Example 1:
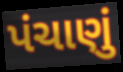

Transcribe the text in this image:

પંચાણું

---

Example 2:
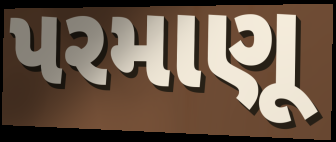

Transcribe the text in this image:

પરમાણૂ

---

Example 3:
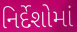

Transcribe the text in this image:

નિર્દેશોમાં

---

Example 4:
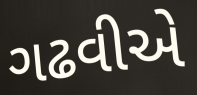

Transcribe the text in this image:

ગઢવીએ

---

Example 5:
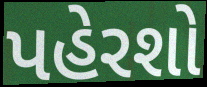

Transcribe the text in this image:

પહેરશો